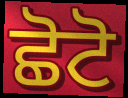
ਛੋਟੋ